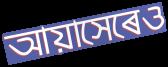
আয়াসেৰেও